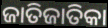
ଜାତିଜାତିକା